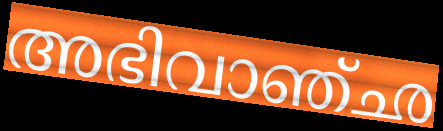
അഭിവാഞ്ഛ